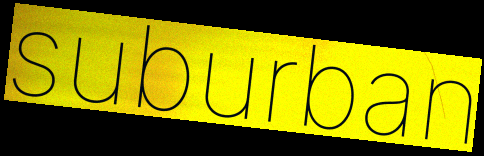
suburban